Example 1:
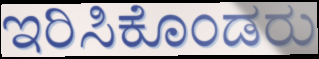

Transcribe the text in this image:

ಇರಿಸಿಕೊಂಡರು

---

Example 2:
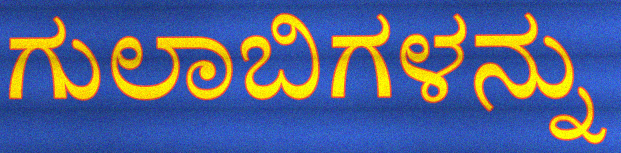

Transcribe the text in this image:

ಗುಲಾಬಿಗಳನ್ನು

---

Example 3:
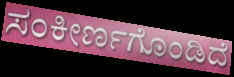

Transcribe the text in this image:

ಸಂಕೀರ್ಣಗೊಂಡಿದೆ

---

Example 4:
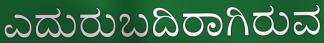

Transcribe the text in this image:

ಎದುರುಬದಿರಾಗಿರುವ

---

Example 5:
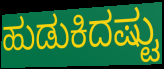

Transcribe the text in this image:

ಹುಡುಕಿದಷ್ಟು